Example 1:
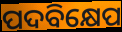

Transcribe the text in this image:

ପଦବିକ୍ଷେପ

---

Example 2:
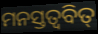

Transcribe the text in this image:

ମନସ୍ତତ୍ଵବିତ୍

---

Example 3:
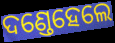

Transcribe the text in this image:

ଦଣ୍ଡେହେଲେ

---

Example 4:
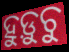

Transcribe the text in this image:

ହୁଡ଼ୁଚୁ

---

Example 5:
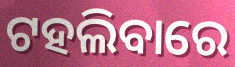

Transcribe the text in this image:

ଟହଲିବାରେ